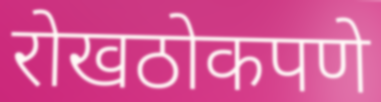
रोखठोकपणे